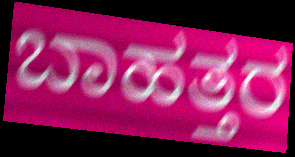
ಬಾಹತ್ತರ